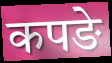
कपङे